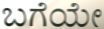
ಬಗೆಯೇ